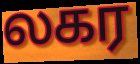
லகர